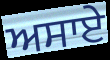
ਅਸਾਏ